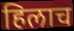
हिलाच